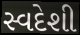
સ્વદેશી